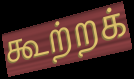
கூற்றக்